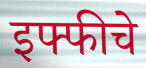
इफ्फीचे